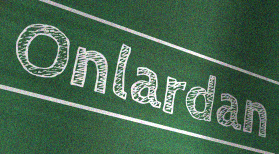
Onlardan